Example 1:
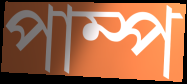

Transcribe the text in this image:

পাম্প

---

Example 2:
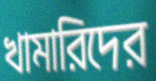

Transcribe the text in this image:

খামারিদের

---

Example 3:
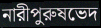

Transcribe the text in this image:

নারীপুরুষভেদ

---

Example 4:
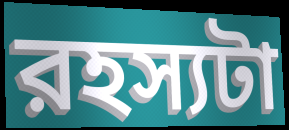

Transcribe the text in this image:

রহস্যটা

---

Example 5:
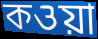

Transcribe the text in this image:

কওয়া